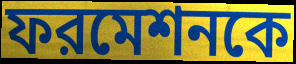
ফরমেশনকে